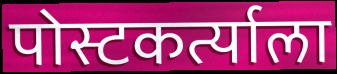
पोस्टकर्त्याला